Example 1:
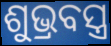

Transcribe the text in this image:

ଶୁଭ୍ରବସ୍ତ୍ର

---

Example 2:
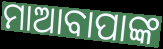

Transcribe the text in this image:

ମାଆବାପାଙ୍କ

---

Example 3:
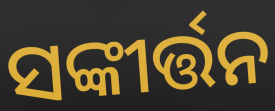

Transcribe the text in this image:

ସଙ୍କୀର୍ତ୍ତନ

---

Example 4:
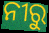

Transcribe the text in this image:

ନୀରୁ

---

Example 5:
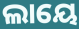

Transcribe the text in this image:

ଲାୟେ